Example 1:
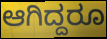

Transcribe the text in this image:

ಆಗಿದ್ದರೂ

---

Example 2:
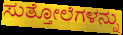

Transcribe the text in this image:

ಸುತ್ತೋಲೆಗಳನ್ನು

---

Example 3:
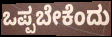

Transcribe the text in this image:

ಒಪ್ಪಬೇಕೆಂದು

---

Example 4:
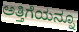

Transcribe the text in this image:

ಅತ್ತಿಗೆಯನ್ನೂ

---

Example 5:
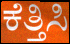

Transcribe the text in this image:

ಕೆತ್ತಿಸಿ